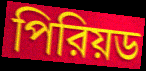
পিরিয়ড